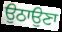
ਉਠਾਉਣਾ